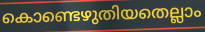
കൊണ്ടെഴുതിയതെല്ലാം